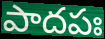
పాదపః